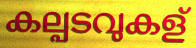
കല്പടവുകള്